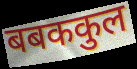
बबककुल